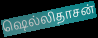
ஷெல்லிதாசன்